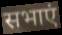
सभाएं